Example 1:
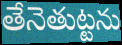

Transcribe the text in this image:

తేనెతుట్టను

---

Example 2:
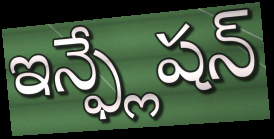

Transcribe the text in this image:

ఇన్ఫ్లేషన్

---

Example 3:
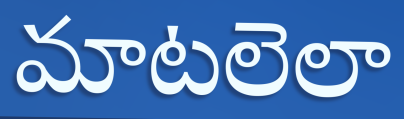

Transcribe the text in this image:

మాటలెలా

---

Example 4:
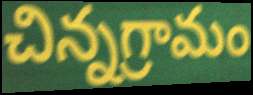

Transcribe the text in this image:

చిన్నగ్రామం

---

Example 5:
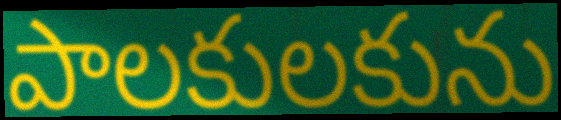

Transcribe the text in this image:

పాలకులకును